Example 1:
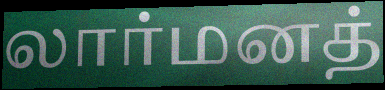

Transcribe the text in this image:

லார்மனத்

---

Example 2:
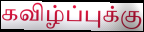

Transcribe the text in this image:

கவிழ்ப்புக்கு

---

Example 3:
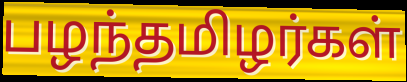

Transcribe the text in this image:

பழந்தமிழர்கள்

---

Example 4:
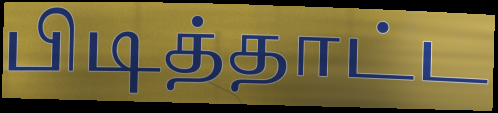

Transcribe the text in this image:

பிடித்தாட்ட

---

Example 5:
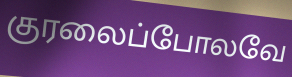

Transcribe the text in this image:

குரலைப்போலவே